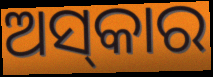
ଅସ୍‌କାର